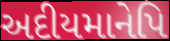
અદીયમાનેપિ